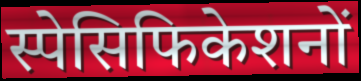
स्पेसिफिकेशनों